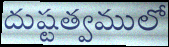
దుష్టత్వములో